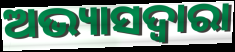
ଅଭ୍ୟାସଦ୍ୱାରା